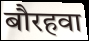
बौरहवा